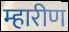
म्हारीण